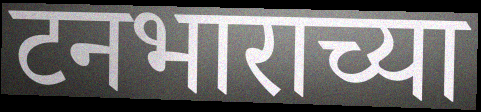
टनभाराच्या